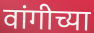
वांगीच्या